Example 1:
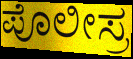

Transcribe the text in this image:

ಪೊಲೀಸ್ರ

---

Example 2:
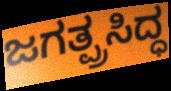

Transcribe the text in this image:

ಜಗತ್ಪ್ರಸಿದ್ಧ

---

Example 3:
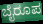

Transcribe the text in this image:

ಬೈರೂಪ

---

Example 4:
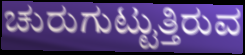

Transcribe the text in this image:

ಚುರುಗುಟ್ಟುತ್ತಿರುವ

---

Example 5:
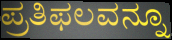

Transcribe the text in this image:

ಪ್ರತಿಫಲವನ್ನೂ